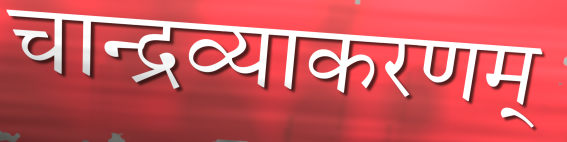
चान्द्रव्याकरणम्